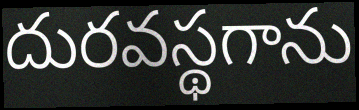
దురవస్థగాను